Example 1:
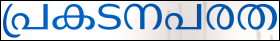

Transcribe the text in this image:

പ്രകടനപരത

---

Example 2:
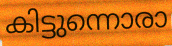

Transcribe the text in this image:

കിട്ടുന്നൊരാ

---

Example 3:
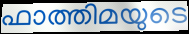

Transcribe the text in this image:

ഫാത്തിമയുടെ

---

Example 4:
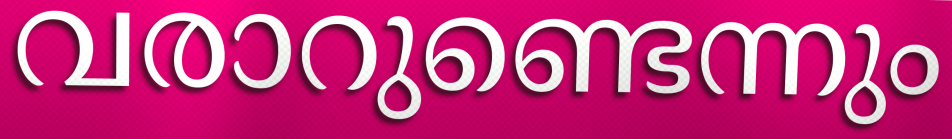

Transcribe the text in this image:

വരാറുണ്ടെന്നും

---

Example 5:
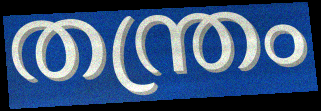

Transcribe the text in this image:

തന്ത്രം